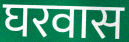
घरवास